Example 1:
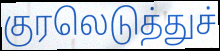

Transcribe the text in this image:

குரலெடுத்துச்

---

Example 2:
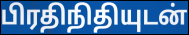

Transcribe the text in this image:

பிரதிநிதியுடன்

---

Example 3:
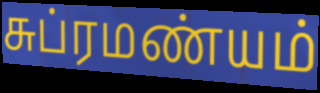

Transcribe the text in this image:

சுப்ரமண்யம்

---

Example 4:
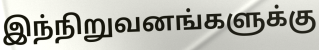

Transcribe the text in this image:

இந்நிறுவனங்களுக்கு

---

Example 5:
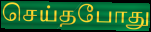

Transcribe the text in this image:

செய்தபோது